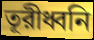
তূরীধ্বনি